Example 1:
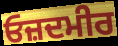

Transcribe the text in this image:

ਓਜ਼ਦਮੀਰ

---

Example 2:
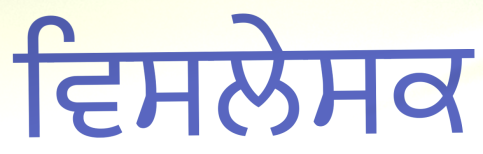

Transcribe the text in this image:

ਵਿਸਲੇਸਕ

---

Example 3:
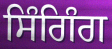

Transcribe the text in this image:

ਸਿੰਗਿੰਗ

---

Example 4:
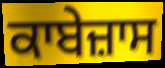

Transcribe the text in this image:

ਕਾਬੇਜ਼ਾਸ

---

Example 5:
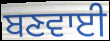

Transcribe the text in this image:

ਬਣਵਾਈ